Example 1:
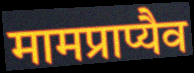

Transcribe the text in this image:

मामप्राप्यैव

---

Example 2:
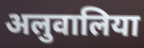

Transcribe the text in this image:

अलुवालिया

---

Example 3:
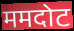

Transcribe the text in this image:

ममदोट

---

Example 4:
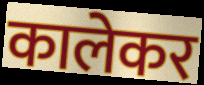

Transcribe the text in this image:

कालेकर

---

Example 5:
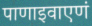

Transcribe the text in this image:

पाणाइवाएणं